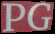
PG